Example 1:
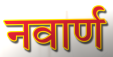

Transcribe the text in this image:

नवार्ण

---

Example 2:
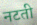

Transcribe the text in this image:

नटती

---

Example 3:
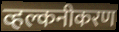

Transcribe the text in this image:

व्हल्कनीकरण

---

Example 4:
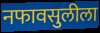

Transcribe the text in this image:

नफावसुलीला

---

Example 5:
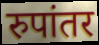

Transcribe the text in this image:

रुपांतर